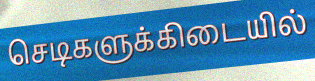
செடிகளுக்கிடையில்